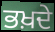
ਭਖ਼ਦੇ